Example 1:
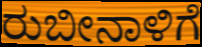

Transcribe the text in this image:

ರುಬೀನಾಳಿಗೆ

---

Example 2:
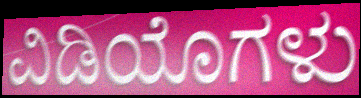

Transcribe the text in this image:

ವಿಡಿಯೊಗಳು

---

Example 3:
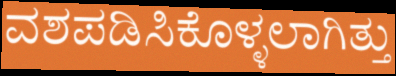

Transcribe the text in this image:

ವಶಪಡಿಸಿಕೊಳ್ಳಲಾಗಿತ್ತು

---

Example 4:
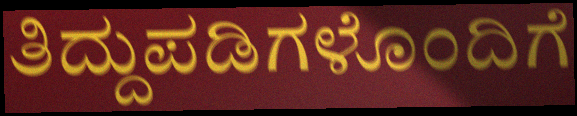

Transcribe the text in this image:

ತಿದ್ದುಪಡಿಗಳೊಂದಿಗೆ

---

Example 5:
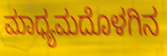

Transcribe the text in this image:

ಮಾಧ್ಯಮದೊಳಗಿನ